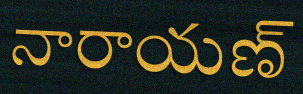
నారాయణ్